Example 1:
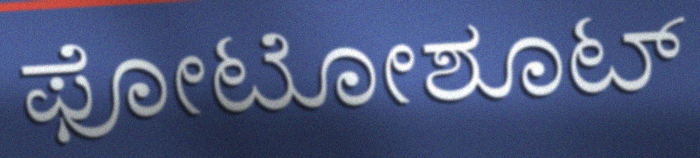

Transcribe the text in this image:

ಫೋಟೋಶೂಟ್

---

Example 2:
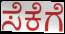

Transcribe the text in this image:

ಸೆಕೆಗೆ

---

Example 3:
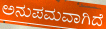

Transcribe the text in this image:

ಅನುಪಮವಾಗಿದೆ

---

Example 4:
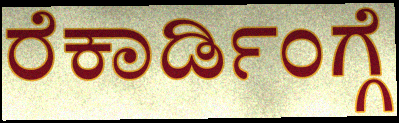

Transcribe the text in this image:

ರೆಕಾರ್ಡಿಂಗ್ಗೆ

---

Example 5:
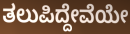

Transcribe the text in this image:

ತಲುಪಿದ್ದೇವೆಯೇ